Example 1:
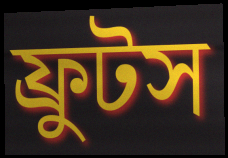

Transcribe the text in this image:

ফ্রুটস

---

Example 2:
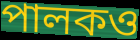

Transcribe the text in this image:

পালকও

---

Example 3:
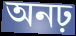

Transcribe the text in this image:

অনঢ়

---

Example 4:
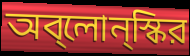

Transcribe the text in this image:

অব্‌লোন্‌স্কির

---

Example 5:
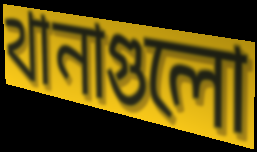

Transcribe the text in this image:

থানাগুলো